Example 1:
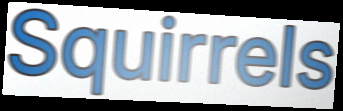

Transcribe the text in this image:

Squirrels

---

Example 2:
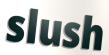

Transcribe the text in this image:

slush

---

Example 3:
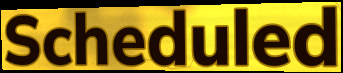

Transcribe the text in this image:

Scheduled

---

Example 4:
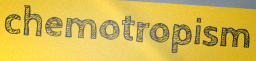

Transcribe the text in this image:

chemotropism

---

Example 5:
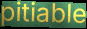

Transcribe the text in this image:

pitiable